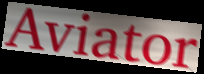
Aviator